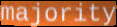
majority